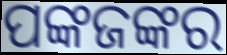
ପଙ୍କଜଙ୍କର